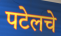
पटेलचे